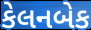
કેલનબેક